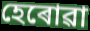
হেৰোৱা